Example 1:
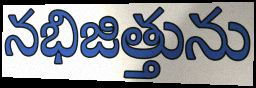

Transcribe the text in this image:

నభిజిత్తును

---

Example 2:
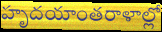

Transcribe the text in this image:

హృదయాంతరాళాల్లో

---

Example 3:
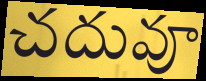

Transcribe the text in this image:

చదువూ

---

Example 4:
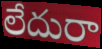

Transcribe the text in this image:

లేదురా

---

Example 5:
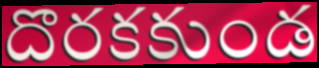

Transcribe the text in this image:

దొరకకుండ